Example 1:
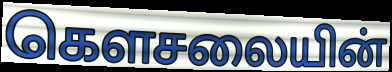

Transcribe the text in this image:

கௌசலையின்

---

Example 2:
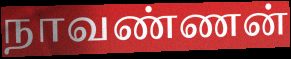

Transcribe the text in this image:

நாவண்ணன்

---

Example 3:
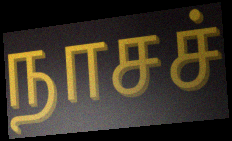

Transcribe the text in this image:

நாசச்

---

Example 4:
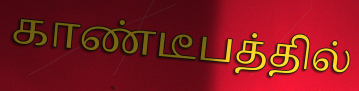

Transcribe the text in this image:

காண்டீபத்தில்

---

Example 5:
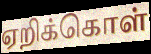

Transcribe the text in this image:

ஏறிக்கொள்